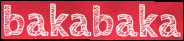
bakabaka